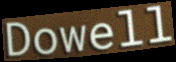
Dowell